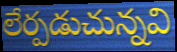
లేర్పడుచున్నవి